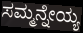
ಸಮ್ಮನ್ನೇಯ್ಯ